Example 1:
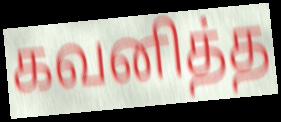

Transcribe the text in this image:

கவனித்த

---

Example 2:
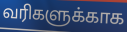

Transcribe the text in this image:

வரிகளுக்காக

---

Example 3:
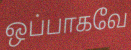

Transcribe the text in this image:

ஒப்பாகவே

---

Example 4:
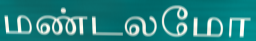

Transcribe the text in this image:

மண்டலமோ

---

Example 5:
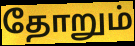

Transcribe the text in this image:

தோறும்